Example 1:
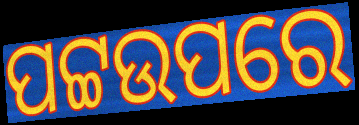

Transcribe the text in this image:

ପଟ୍ଟଉପରେ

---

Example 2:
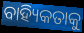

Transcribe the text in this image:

ବାହ୍ୟିକତାକୁ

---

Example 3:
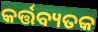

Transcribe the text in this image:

କର୍ତ୍ତବ୍ୟତକ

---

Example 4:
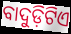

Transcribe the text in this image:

ବାଦୁଡ଼ିଟିଏ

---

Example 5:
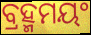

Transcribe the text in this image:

ବ୍ରହ୍ମମୟଂ